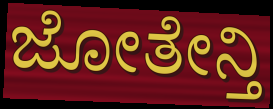
ಜೋತೇನ್ತಿ